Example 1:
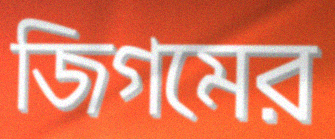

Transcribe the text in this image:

জিগমের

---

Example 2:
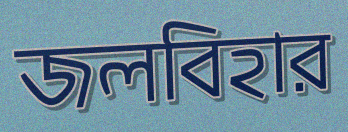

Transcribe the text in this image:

জলবিহার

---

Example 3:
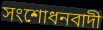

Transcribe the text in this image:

সংশোধনবাদী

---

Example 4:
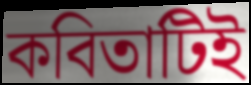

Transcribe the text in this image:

কবিতাটিই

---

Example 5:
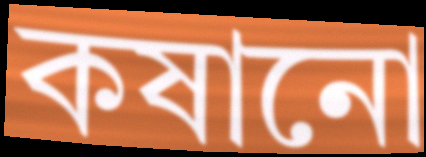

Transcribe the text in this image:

কষানো